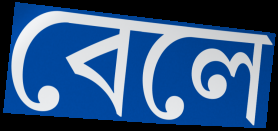
বেলে